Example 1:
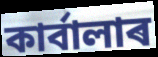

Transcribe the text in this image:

কাৰ্বালাৰ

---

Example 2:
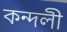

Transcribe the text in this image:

কন্দলী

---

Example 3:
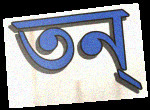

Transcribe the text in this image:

তন্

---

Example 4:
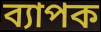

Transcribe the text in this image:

ব্যাপক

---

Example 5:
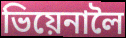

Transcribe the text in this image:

ভিয়েনালৈ